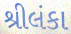
શ્રીલંકા